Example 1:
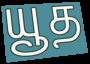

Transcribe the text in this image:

யூத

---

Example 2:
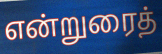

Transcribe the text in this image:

என்றுரைத்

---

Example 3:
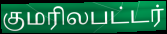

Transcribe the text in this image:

குமரிலபட்டர்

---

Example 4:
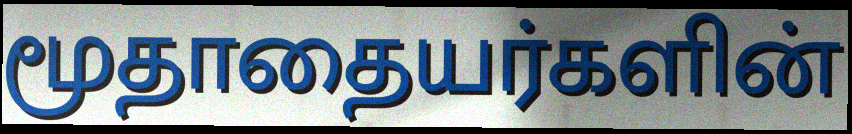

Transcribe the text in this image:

மூதாதையர்களின்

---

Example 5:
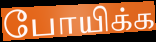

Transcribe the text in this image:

போயிக்க